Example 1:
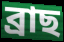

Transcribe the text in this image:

ব্ৰাছ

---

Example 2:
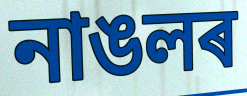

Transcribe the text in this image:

নাঙলৰ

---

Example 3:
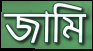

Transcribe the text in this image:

জামি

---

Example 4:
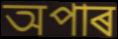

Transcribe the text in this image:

অপাৰ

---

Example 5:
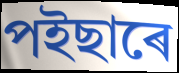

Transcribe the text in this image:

পইছাৰে